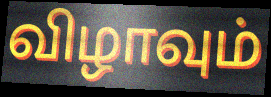
விழாவும்